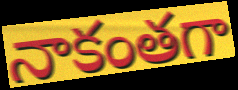
నాకంతగా